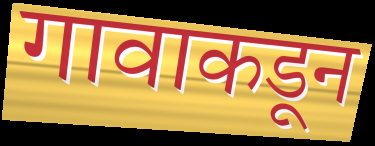
गावाकडून